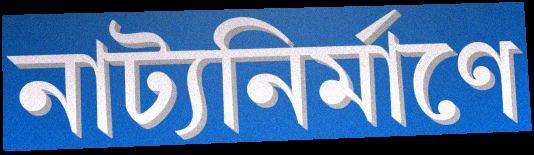
নাট্যনির্মাণে